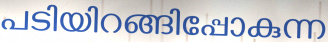
പടിയിറങ്ങിപ്പോകുന്ന